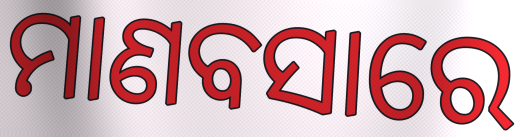
ମାଣବସାରେ